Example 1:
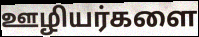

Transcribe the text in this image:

ஊழியர்களை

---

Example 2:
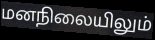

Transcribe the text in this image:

மனநிலையிலும்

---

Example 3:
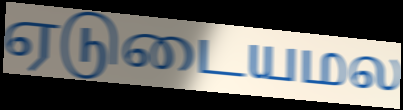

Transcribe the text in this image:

ஏடுடையமல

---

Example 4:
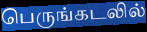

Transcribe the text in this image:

பெருங்கடலில்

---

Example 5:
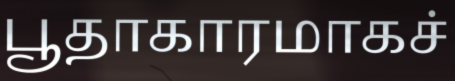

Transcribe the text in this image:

பூதாகாரமாகச்